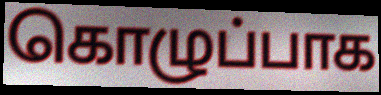
கொழுப்பாக